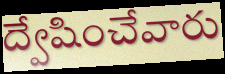
ద్వేషించేవారు